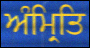
ਅੰਮ੍ਰਿਤਿ